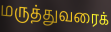
மருத்துவரைக்